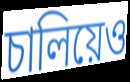
চালিয়েও